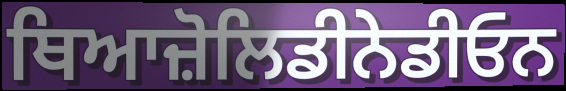
ਥਿਆਜ਼ੋਲਿਡੀਨੇਡੀਓਨ